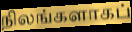
நிலங்களாகப்